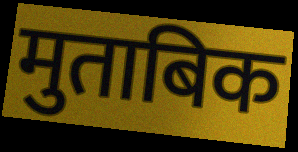
मुताबिक